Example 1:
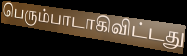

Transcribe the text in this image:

பெரும்பாடாகிவிட்டது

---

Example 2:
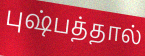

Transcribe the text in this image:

புஷ்பத்தால்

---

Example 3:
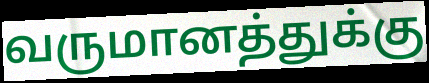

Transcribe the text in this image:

வருமானத்துக்கு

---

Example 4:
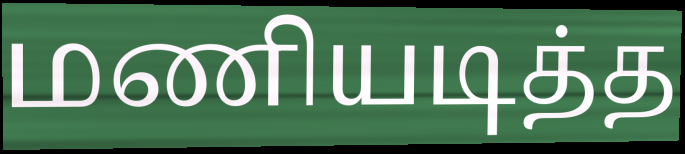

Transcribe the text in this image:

மணியடித்த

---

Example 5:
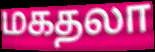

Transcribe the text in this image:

மகதலா